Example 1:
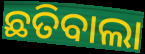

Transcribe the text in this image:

ଛତିବାଲା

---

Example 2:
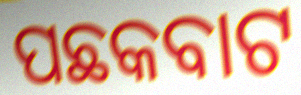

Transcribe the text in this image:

ପଛକବାଟ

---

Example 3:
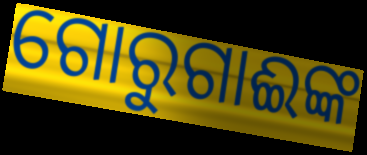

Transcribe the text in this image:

ଗୋରୁଗାଈଙ୍କ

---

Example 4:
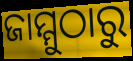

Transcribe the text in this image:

ଜାମ୍ମୁଠାରୁ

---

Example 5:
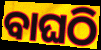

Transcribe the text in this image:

ବାଘଠି